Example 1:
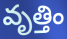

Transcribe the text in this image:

వృత్తిం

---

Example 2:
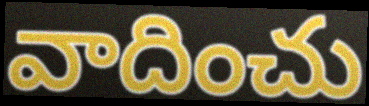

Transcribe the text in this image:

వాదించు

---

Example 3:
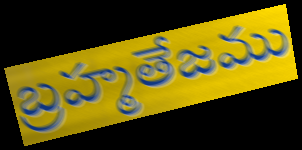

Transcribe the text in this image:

బ్రహ్మతేజము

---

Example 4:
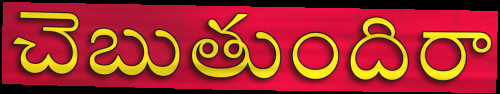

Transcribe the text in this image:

చెబుతుందిరా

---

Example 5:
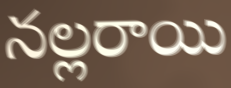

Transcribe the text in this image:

నల్లరాయి